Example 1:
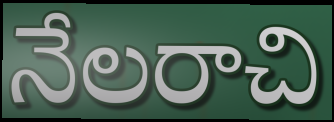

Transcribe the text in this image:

నేలరాచి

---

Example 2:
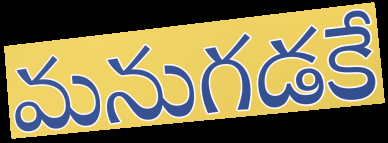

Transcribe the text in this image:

మనుగడకే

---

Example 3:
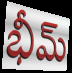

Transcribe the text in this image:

భీమ్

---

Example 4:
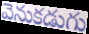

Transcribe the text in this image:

వెనుకడుగు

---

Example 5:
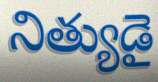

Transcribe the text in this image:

నిత్యుడై